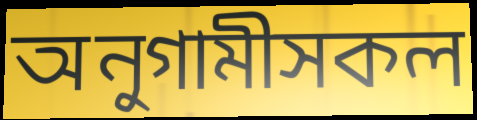
অনুগামীসকল